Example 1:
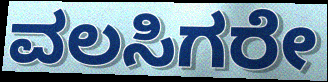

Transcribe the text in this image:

ವಲಸಿಗರೇ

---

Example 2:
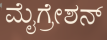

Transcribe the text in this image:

ಮೈಗ್ರೇಶನ್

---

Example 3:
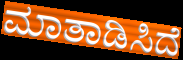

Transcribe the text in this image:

ಮಾತಾಡಿಸಿದೆ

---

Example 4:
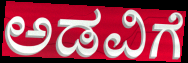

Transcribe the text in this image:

ಅಡವಿಗೆ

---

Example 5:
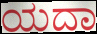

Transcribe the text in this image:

ಯದಾ